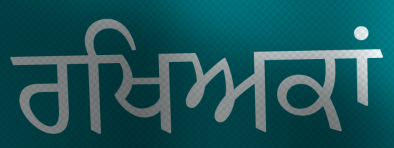
ਰਖਿਅਕਾਂ